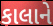
કાલાને